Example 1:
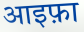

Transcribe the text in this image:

आइफ़ा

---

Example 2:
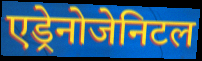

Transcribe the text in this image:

एड्रेनोजेनिटल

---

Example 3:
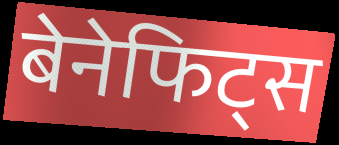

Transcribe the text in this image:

बेनेफिट्स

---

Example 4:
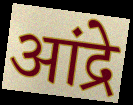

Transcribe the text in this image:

आंद्रे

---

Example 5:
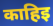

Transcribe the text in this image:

काहिइ